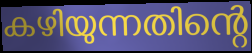
കഴിയുന്നതിന്റെ